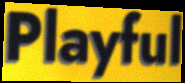
Playful